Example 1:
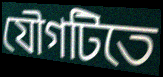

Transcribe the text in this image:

যৌগটিতে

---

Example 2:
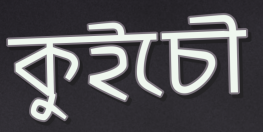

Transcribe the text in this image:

কুইচৌ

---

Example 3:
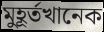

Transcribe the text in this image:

মুহূর্তখানেক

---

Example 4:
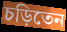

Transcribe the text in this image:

চড়িতেন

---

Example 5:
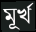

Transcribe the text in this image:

মূর্খ